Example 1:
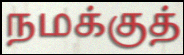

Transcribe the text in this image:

நமக்குத்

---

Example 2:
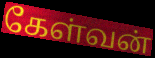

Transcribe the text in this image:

கேள்வன்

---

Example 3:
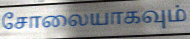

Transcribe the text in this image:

சோலையாகவும்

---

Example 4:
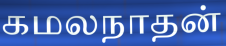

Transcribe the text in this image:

கமலநாதன்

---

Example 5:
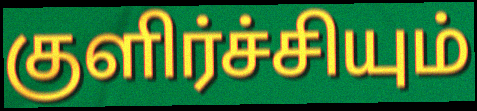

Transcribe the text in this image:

குளிர்ச்சியும்